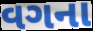
વગના